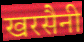
खरसैनी